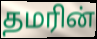
தமரின்